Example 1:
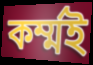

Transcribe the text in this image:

কর্ম্মই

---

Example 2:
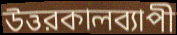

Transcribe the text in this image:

উত্তরকালব্যাপী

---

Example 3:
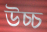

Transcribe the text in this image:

উচ্চ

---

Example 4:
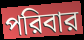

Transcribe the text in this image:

পরিবার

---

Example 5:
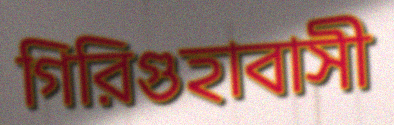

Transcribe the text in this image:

গিরিগুহাবাসী